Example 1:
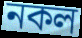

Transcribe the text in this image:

নকল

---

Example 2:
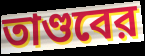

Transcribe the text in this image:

তাণ্ডবের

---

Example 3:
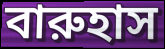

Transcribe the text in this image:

বারুহাস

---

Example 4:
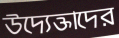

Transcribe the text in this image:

উদ্যেক্তাদের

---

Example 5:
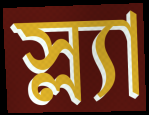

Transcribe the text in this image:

স্ল্যা